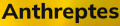
Anthreptes